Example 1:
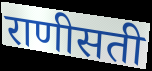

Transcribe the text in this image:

राणीसती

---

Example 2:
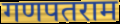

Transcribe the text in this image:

गणपतराम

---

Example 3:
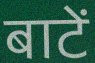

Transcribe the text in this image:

बाटें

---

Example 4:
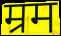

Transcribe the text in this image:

म्रम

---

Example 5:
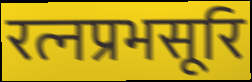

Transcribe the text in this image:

रत्नप्रभसूरि